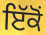
ਇੱਕੋਂ